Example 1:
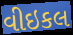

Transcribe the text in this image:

વીઇકલ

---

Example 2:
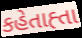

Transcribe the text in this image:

કહેતાહ્તા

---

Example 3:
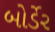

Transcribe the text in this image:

બોર્ડેર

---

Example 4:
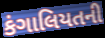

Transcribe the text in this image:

કંગાલિયતની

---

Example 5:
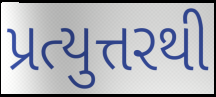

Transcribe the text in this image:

પ્રત્યુત્તરથી